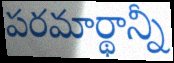
పరమార్థాన్నీ